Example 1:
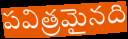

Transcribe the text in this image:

పవిత్రమైనది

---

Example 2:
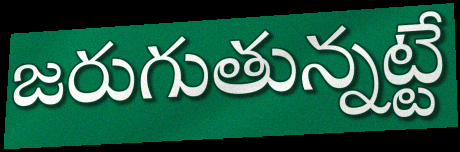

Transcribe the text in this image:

జరుగుతున్నట్టే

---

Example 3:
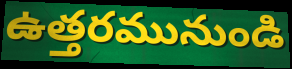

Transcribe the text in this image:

ఉత్తరమునుండి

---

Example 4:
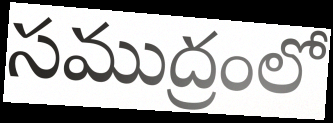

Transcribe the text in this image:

సముద్రంలో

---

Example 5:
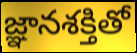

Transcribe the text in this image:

జ్ఞానశక్తితో